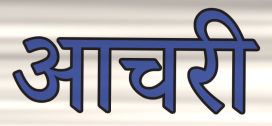
आचरी